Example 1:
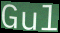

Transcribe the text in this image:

Gul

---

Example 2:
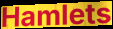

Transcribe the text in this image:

Hamlets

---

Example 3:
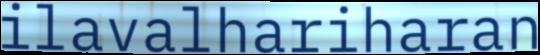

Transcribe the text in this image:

ilavalhariharan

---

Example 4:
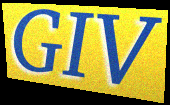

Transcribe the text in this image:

GIV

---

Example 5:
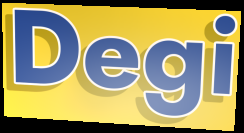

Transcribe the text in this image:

Degi